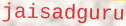
jaisadguru